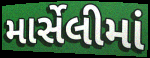
માર્સેલીમાં